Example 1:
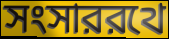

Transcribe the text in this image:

সংসাররথে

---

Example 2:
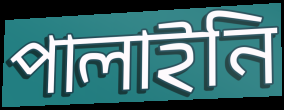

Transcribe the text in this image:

পালাইনি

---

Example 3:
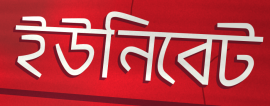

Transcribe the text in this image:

ইউনিবেট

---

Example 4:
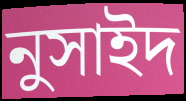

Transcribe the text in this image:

নুসাইদ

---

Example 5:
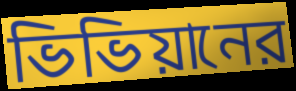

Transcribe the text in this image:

ভিভিয়ানের